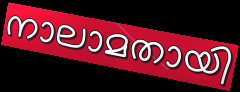
നാലാമതായി